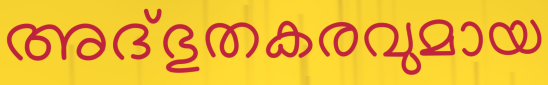
അദ്ഭുതകരവുമായ